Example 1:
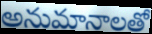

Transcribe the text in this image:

అనుమానాలతో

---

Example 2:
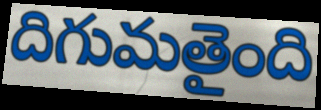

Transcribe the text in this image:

దిగుమతైంది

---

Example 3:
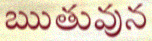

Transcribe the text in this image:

ఋతువున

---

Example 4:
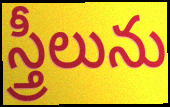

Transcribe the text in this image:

స్త్రీలును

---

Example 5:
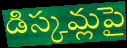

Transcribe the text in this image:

డిస్కమ్లపై